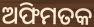
ଅଫିମତକ